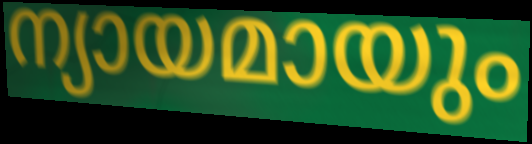
ന്യായമായും